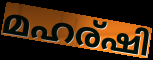
മഹര്ഷി